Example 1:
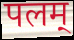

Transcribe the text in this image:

पलम्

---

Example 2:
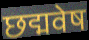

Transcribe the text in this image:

छद्मवेष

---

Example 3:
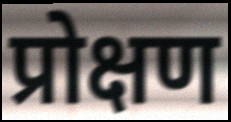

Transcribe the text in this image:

प्रोक्षण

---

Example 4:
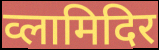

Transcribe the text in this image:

व्लामिदिर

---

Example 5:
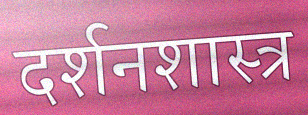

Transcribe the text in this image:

दर्शनशास्त्र